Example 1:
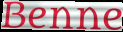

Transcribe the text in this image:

Benne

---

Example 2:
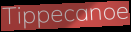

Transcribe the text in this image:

Tippecanoe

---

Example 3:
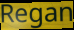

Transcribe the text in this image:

Regan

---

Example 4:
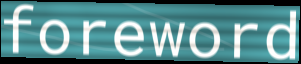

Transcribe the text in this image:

foreword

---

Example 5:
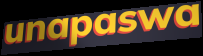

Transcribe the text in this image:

unapaswa